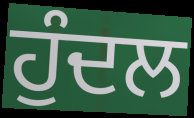
ਹੁੰਦਲ